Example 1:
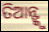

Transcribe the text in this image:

ତିଆନ୍ଙ୍କୁ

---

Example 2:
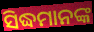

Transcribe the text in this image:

ସିଦ୍ଧମାନଙ୍କ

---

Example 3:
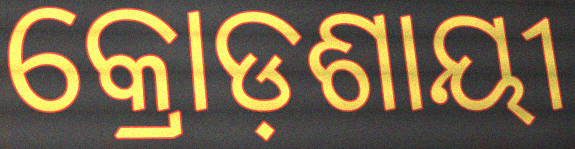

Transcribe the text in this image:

କ୍ରୋଡ଼ଶାୟୀ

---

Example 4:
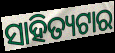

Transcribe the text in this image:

ସାହିତ୍ୟଟାର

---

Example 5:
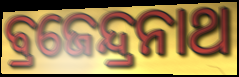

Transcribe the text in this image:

ବ୍ରଜେନ୍ଦ୍ରନାଥ